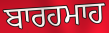
ਬਾਰਹਮਾਹ